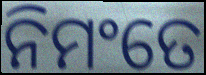
ନିମଂତେ